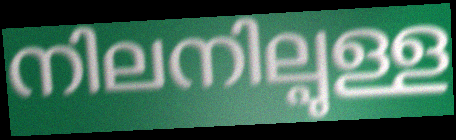
നിലനില്പുള്ള